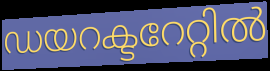
ഡയറക്ടറേറ്റിൽ